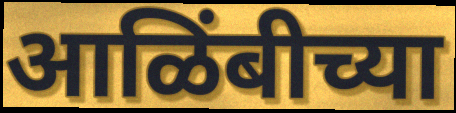
आळिंबीच्या